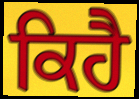
ਕਿਹੈ